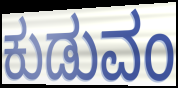
ಕುಡುವಂ